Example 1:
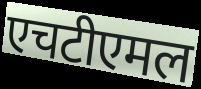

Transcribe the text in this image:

एचटीएमल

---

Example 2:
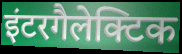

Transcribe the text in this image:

इंटरगैलेक्टिक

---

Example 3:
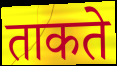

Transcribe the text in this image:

ताकते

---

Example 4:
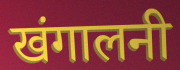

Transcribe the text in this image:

खंगालनी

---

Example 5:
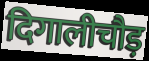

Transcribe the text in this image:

दिगालीचौड़